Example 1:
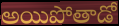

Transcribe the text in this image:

అయిపోతాడో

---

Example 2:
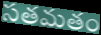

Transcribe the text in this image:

సతమతం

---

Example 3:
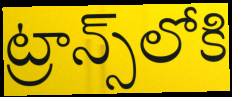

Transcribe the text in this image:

ట్రాన్స్‌లోకి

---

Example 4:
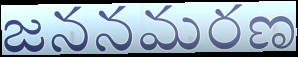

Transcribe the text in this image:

జననమరణ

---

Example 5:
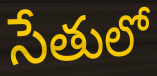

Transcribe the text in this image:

సేతులో